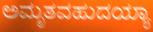
ಅಮೃತವಹುದಯ್ಯಾ